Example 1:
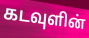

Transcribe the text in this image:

கடவுளின்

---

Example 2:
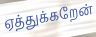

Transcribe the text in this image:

ஏத்துக்கறேன்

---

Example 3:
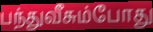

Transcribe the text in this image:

பந்துவீசும்போது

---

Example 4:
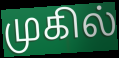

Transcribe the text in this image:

முகில்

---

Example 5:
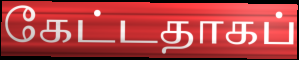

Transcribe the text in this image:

கேட்டதாகப்